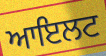
ਆਇਲਟ